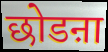
छोडऩा